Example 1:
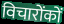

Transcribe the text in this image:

विचारोंकों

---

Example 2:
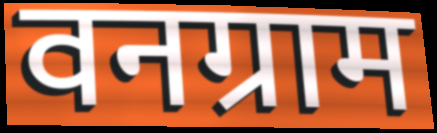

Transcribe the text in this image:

वनग्राम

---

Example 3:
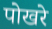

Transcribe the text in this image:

पोखरे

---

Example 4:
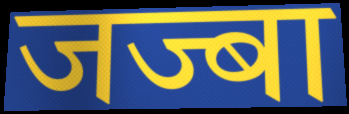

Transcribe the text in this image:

जज्बा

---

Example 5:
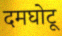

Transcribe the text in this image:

दमघोटू